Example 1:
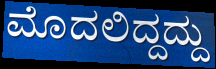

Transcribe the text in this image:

ಮೊದಲಿದ್ದದ್ದು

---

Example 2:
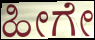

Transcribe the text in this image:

ಹೀಗೇ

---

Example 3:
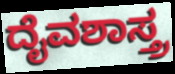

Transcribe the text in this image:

ದೈವಶಾಸ್ತ್ರ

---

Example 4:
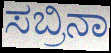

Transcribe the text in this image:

ಸಬ್ರಿನಾ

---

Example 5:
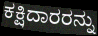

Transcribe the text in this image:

ಕಕ್ಷಿದಾರರನ್ನು